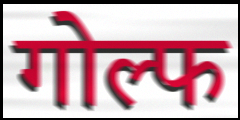
गोल्फ